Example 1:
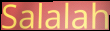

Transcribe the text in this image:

Salalah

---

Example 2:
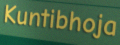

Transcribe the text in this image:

Kuntibhoja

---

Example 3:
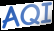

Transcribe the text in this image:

AQI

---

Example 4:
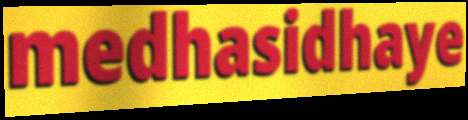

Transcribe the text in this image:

medhasidhaye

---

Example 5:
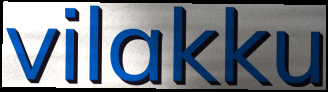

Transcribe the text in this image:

vilakku